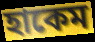
হাকেম